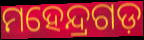
ମହେନ୍ଦ୍ରଗଡ଼